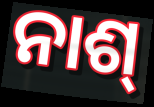
ନାଶ୍